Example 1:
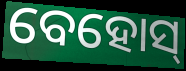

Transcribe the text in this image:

ବେହୋସ୍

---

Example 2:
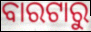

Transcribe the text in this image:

ବାରଟାରୁ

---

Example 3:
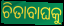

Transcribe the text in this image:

ଚିତାବାଘକୁ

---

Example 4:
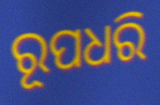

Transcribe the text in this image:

ରୂପଧରି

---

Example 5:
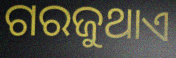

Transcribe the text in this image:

ଗରଜୁଥାଏ